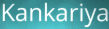
Kankariya